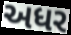
અધર